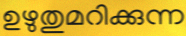
ഉഴുതുമറിക്കുന്ന